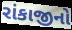
રાંકાજીનો